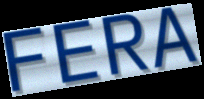
FERA